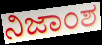
ನಿಜಾಂಶ